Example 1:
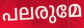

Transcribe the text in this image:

പലരുമേ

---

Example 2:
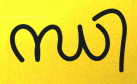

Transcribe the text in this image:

ന്ധി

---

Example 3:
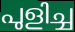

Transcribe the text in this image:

പുളിച്ച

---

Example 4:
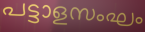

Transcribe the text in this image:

പട്ടാളസംഘം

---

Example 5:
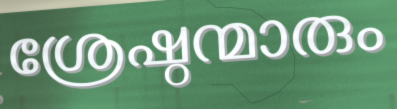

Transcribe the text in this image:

ശ്രേഷ്ഠന്മാരും